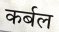
कर्बल